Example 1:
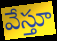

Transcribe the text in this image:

వేస్తూ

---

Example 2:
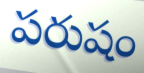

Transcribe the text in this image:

పరుషం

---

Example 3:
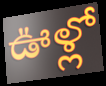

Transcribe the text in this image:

ఊళ్లో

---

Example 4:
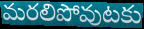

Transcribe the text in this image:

మరలిపోవుటకు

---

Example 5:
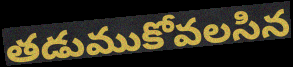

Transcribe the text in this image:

తడుముకోవలసిన